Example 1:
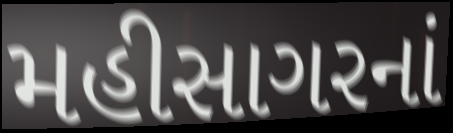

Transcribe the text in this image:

મહીસાગરનાં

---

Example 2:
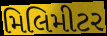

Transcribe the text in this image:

મિલિમીટર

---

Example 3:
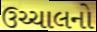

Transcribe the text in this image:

ઉચ્ચાલનો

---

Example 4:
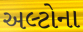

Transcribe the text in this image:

અલ્ટોના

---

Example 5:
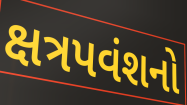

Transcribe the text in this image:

ક્ષત્રપવંશનો